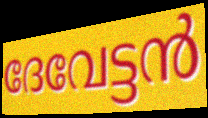
ദേവേട്ടൻ